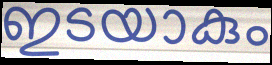
ഇടയാകും